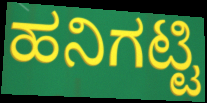
ಹನಿಗಟ್ಟಿ